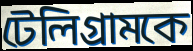
টেলিগ্রামকে